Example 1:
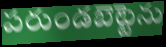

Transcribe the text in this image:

పరుండబెట్టెను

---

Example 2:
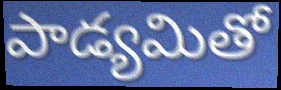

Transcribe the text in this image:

పాడ్యమితో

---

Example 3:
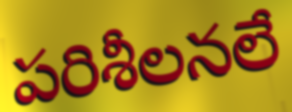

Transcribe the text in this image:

పరిశీలనలే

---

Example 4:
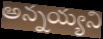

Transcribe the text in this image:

అన్నయ్యని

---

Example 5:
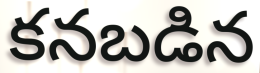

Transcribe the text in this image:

కనబడిన